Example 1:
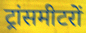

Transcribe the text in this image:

ट्रांसमीटरों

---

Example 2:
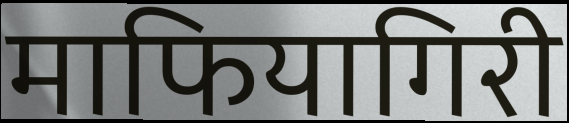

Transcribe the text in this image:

माफियागिरी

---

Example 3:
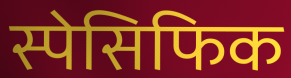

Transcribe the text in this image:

स्पेसिफिक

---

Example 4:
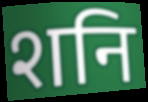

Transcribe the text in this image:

शनि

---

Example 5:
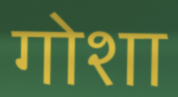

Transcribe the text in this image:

गोशा